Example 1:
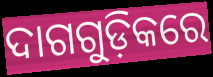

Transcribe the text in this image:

ଦାଗଗୁଡ଼ିକରେ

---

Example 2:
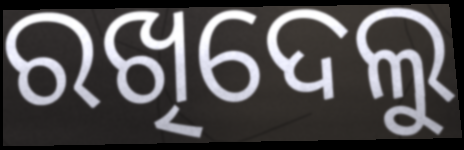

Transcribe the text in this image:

ରଖିଦେଲୁ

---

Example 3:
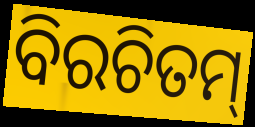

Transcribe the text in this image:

ବିରଚିତମ୍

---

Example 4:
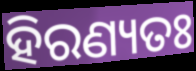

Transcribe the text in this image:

ହିରଣ୍ୟତଃ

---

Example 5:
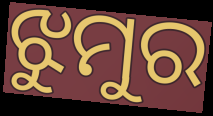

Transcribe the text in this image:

ଝୁମୁର